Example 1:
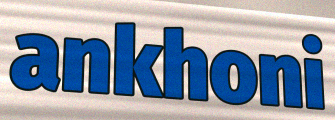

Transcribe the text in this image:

ankhoni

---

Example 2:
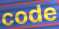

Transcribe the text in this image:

code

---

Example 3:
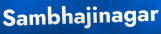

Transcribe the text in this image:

Sambhajinagar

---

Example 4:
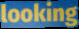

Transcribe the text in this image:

looking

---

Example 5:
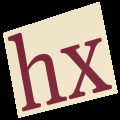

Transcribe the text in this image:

hx